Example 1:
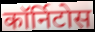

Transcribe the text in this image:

कॉर्निटोस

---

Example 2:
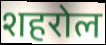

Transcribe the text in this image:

शहरोल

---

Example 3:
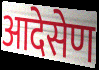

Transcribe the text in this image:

आदेसेण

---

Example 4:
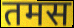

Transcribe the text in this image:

तमस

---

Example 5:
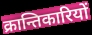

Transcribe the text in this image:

क्रान्तिकारियों